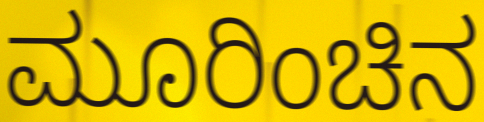
ಮೂರಿಂಚಿನ